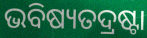
ଭବିଷ୍ୟତଦ୍ରଷ୍ଟା